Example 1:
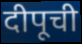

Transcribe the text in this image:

दीपूची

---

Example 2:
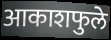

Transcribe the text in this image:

आकाशफुले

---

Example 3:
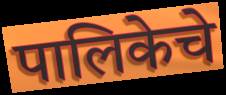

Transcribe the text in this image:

पालिकेचे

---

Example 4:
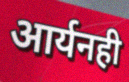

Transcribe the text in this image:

आर्यनही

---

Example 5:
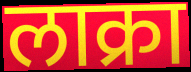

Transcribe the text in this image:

लाक्रा